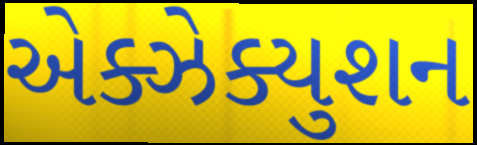
એક્ઝેક્યુશન